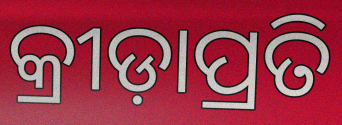
କ୍ରୀଡ଼ାପ୍ରତି